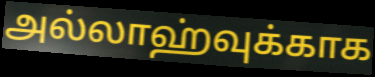
அல்லாஹ்வுக்காக